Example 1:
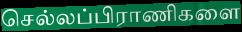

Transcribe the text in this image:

செல்லப்பிராணிகளை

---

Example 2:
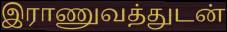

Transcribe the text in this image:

இராணுவத்துடன்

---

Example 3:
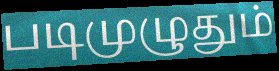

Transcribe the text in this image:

படிமுழுதும்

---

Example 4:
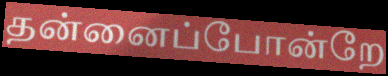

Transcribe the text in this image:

தன்னைப்போன்றே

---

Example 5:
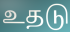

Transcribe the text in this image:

உதடு